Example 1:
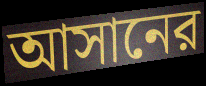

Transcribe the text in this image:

আসানের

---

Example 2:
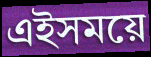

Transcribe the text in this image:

এইসময়ে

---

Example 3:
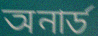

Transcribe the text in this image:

অনার্ড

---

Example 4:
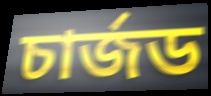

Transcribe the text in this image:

চার্জড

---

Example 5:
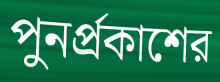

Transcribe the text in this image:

পুনর্প্রকাশের